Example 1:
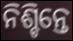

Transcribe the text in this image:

ନିଶ୍ଚିନ୍ତେ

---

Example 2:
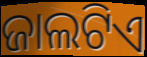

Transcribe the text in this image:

ଜାଲଟିଏ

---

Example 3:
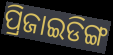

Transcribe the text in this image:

ପ୍ରିଜାଇଡିଙ୍ଗ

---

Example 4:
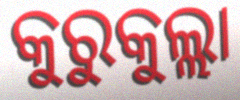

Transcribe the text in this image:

କୁରୁକୁଲ୍ଲା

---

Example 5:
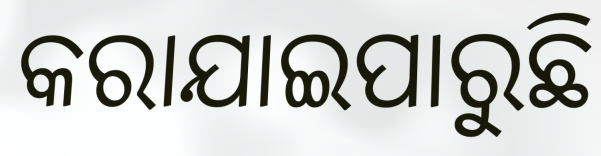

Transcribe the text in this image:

କରାଯାଇପାରୁଛି